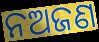
ନଅଜଣ